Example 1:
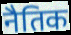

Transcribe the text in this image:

नैतिक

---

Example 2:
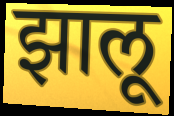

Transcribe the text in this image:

झालू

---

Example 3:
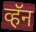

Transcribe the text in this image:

व्हॅन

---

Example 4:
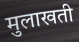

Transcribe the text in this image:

मुलाखती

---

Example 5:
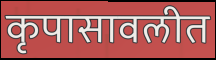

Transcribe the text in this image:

कृपासावलीत